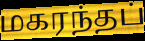
மகரந்தப்